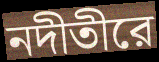
নদীতীরে